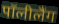
पॉलीलैंग